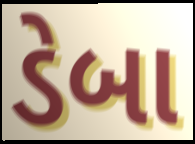
ડેબા